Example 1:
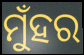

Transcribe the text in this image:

ମୁଁହର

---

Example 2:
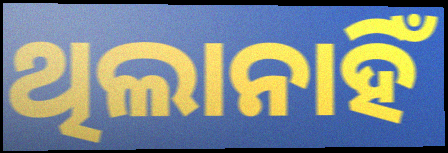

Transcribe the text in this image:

ଥିଲାନାହିଁ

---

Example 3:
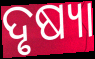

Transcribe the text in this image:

ଦୃଷ୍ୟା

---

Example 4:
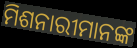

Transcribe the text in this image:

ମିଶନାରୀମାନଙ୍କ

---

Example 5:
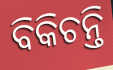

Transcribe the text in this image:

ବିକିଚନ୍ତି